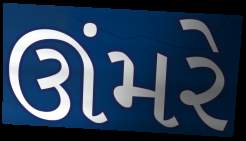
ઊંમરે